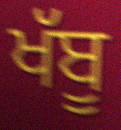
ਖੱਬੂ